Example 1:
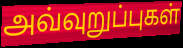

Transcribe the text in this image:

அவ்வுறுப்புகள்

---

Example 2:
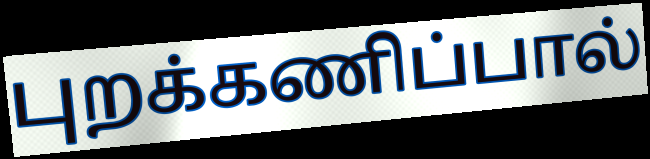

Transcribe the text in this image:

புறக்கணிப்பால்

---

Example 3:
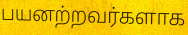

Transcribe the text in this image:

பயனற்றவர்களாக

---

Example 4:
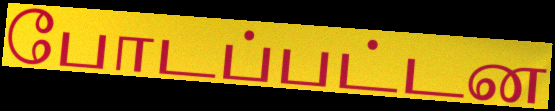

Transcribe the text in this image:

போடப்பட்டன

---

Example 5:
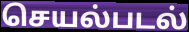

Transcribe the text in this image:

செயல்படல்